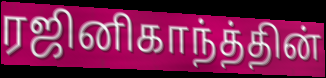
ரஜினிகாந்த்தின்